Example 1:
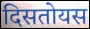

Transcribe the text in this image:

दिसतोयस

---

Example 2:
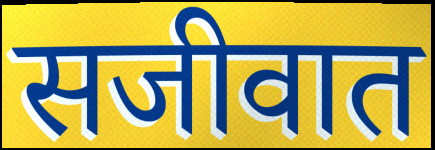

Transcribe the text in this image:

सजीवात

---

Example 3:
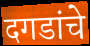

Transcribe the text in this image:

दगडांचे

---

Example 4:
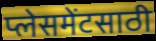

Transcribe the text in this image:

प्लेसमेंटसाठी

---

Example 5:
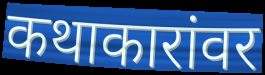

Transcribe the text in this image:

कथाकारांवर